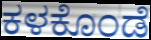
ಕಳಕೊಂಡೆ